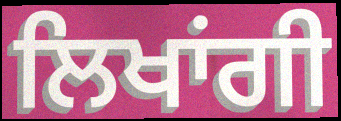
ਲਿਖਾਂਗੀ